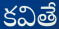
కవితే